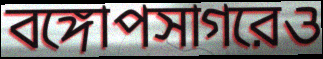
বঙ্গোপসাগরেও